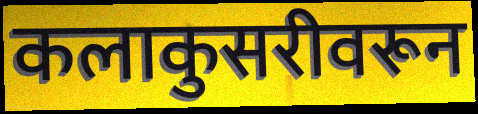
कलाकुसरीवरून